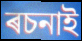
ৰচনাই